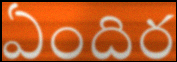
ఏందిర